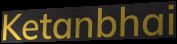
Ketanbhai